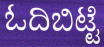
ಓದಿಬಿಟ್ಟೆ